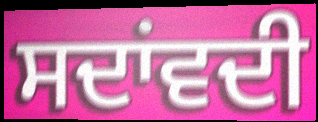
ਸਦਾਂਵਦੀ